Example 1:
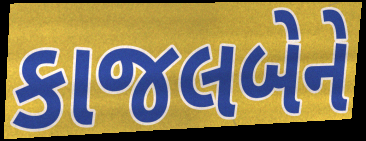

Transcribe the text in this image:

કાજલબેને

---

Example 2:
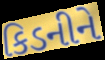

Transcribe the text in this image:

કિડનીને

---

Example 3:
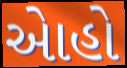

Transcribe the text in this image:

એાહો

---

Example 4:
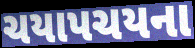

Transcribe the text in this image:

ચયાપચયના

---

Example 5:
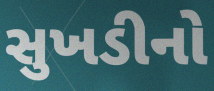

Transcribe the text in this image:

સુખડીનો